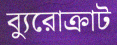
ব্যুরোক্রাট